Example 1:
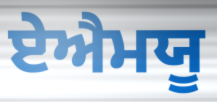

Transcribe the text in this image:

ਏਐਮਯੂ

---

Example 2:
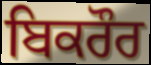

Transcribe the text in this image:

ਬਿਕਰੌਰ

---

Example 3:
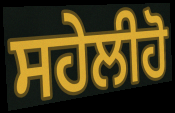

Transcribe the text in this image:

ਸਹੇਲੀਹੋ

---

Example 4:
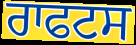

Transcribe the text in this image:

ਰਾਫਟਸ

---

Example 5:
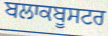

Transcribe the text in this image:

ਬਲਾਕਬੂਸਟਰ